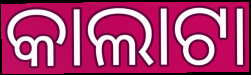
କାଲାଟା